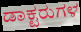
ಡಾಕ್ಟರುಗಳ